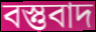
বস্তুবাদ